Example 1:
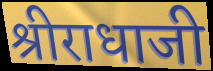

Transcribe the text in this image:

श्रीराधाजी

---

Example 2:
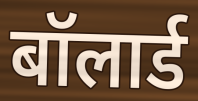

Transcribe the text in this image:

बॉलार्ड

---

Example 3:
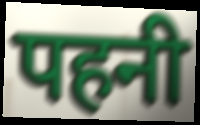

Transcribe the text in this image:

पहनी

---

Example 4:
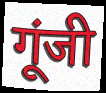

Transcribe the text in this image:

गूंजी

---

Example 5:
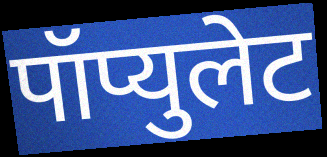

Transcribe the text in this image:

पॉप्युलेट